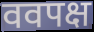
ववपक्ष